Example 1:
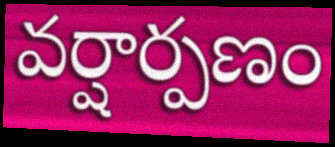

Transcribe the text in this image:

వర్షార్పణం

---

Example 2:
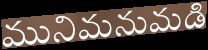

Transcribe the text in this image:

మునిమనుమడి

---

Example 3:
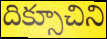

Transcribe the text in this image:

దిక్సూచిని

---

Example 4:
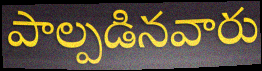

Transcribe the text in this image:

పాల్పడినవారు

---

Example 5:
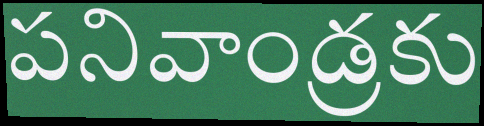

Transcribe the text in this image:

పనివాండ్రకు